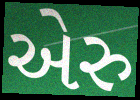
એરુ